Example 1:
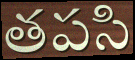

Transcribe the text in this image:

తపసి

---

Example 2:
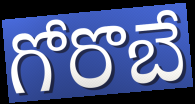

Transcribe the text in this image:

గోరొబే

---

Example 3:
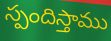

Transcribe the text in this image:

స్పందిస్తాము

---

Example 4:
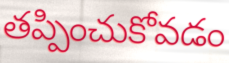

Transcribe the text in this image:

తప్పించుకోవడం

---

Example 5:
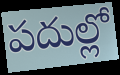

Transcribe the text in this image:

పదుల్లో